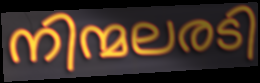
നിന്മലരടി